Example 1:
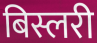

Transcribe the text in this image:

बिस्लरी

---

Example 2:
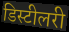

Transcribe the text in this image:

डिस्टीलरी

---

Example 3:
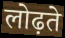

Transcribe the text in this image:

लोढ़ते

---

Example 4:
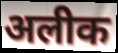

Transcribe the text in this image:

अलीक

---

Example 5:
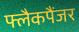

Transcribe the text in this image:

फ्लैकपैंजर